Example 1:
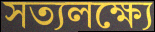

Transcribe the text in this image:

সত্যলক্ষ্যে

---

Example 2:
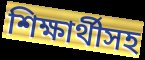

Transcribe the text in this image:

শিক্ষার্থীসহ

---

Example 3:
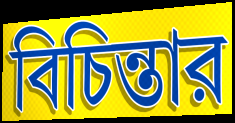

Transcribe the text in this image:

বিচিন্তার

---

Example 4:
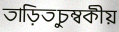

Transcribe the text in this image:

তাড়িতচুম্বকীয়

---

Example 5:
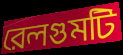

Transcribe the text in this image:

রেলগুমটি